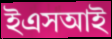
ইএসআই